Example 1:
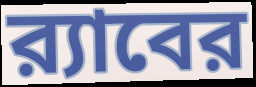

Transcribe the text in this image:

র‍্যাবের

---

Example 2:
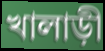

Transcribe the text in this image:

খালাড়ী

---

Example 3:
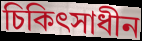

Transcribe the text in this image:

চিকিৎসাধীন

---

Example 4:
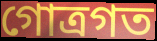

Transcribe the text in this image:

গোত্রগত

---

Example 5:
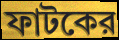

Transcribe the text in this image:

ফাটকের